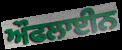
ਔਫਲਾਈਨ